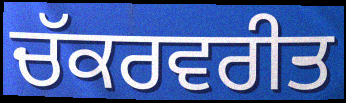
ਚੱਕਰਵਰੀਤ